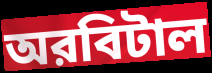
অরবিটাল